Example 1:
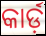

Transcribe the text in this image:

କାର୍ଡ଼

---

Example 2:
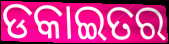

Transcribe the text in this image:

ଡକାଇତର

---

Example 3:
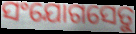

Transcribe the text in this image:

ସଂଯୋଗସେତୁ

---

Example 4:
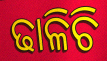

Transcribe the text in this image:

ଢାଳିଚି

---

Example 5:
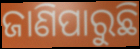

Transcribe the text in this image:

ଜାଣିପାରୁଛି